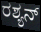
ರಶ್ಯನ್